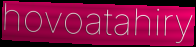
hovoatahiry